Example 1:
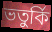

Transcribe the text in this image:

ভতুর্কি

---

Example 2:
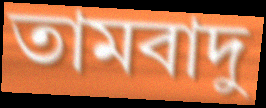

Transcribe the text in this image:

তামবাদু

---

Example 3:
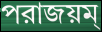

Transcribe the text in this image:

পরাজয়ম্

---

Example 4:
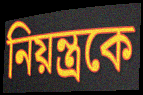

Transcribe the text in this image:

নিয়ন্ত্রকে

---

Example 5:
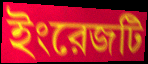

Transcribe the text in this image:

ইংরেজটি